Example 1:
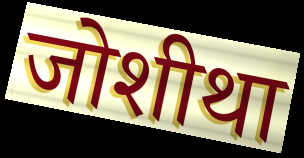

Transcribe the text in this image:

जोशीथा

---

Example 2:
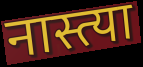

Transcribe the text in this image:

नास्त्या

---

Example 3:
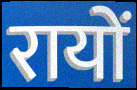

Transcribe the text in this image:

रायों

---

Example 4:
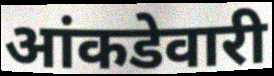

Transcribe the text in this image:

आंकडेवारी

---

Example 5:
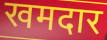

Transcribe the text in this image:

खमदार